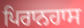
ਪਿਰਾਨਹਾਸ